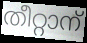
തീറ്റാന്